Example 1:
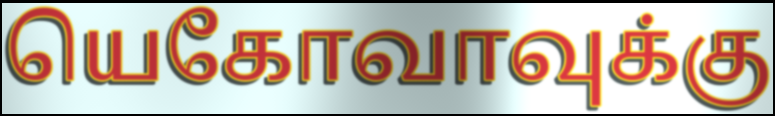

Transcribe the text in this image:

யெகோவாவுக்கு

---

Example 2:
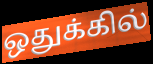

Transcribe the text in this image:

ஒதுக்கில்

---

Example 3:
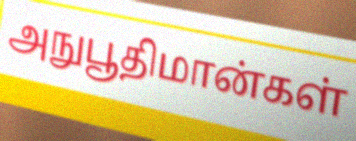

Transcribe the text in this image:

அநுபூதிமான்கள்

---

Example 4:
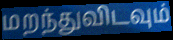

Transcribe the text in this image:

மறந்துவிடவும்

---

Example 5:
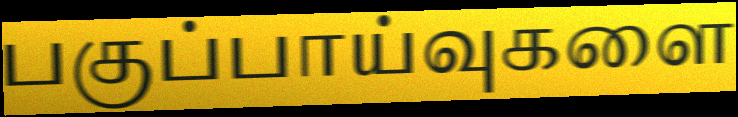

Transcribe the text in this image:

பகுப்பாய்வுகளை